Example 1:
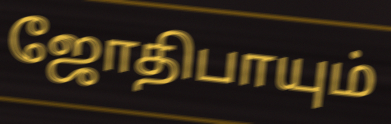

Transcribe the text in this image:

ஜோதிபாயும்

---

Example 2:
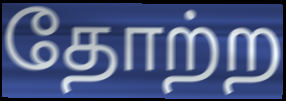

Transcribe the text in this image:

தோற்ற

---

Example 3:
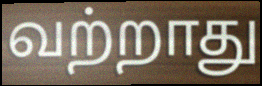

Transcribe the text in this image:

வற்றாது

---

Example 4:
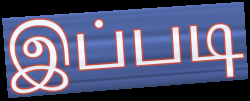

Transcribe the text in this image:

இப்படி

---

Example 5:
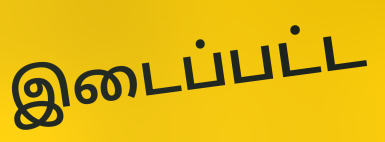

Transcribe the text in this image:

இடைப்பட்ட